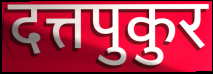
दत्तपुकुर